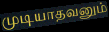
முடியாதவனும்